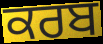
ਕਰਬ